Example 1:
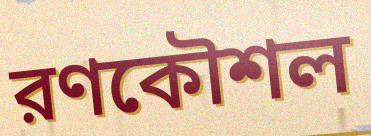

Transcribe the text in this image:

রণকৌশল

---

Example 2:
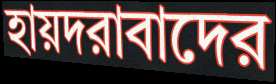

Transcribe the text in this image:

হায়দরাবাদের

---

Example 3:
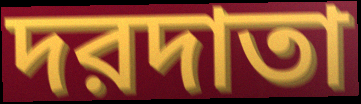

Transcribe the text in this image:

দরদাতা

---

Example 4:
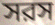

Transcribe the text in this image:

সরস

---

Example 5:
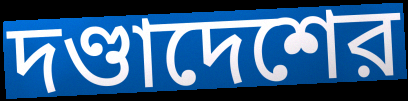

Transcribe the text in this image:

দণ্ডাদেশের